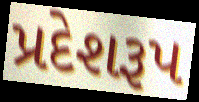
પ્રદેશરૂપ